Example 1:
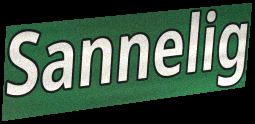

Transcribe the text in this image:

Sannelig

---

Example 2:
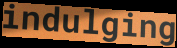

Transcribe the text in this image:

indulging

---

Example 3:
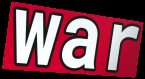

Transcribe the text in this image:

war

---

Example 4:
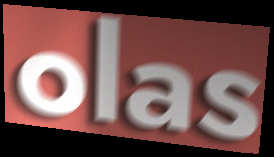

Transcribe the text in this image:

olas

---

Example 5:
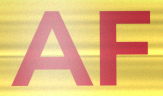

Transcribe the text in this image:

AF